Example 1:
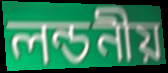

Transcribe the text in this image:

লন্ডনীয়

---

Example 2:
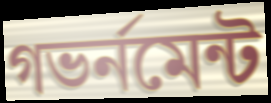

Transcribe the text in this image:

গভর্নমেন্ট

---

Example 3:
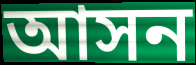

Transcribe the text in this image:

আসন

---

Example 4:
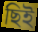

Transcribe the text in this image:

ছিই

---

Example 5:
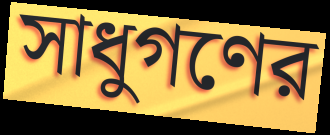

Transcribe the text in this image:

সাধুগণের